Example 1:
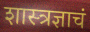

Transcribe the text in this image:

शास्त्रज्ञाचं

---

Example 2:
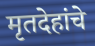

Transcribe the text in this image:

मृतदेहांचे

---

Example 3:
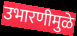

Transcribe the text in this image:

उभारणीमुळे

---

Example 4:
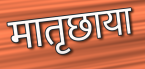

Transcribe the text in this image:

मातृछाया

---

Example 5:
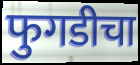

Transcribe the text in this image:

फुगडीचा